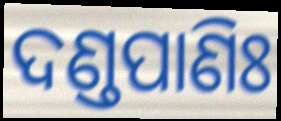
ଦଣ୍ଡପାଣିଃ